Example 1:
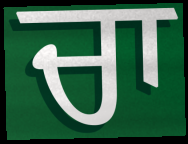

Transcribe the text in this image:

ਚਾ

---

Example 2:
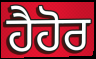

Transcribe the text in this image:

ਹੈਹੋਰ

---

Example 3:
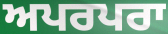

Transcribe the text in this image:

ਅਪਰਪਰਾ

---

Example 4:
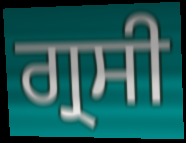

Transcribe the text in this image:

ਗ੍ਰਸੀ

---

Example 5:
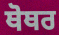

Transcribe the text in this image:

ਥੋਥਰ